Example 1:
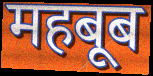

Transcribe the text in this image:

महबूब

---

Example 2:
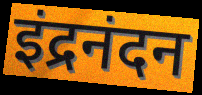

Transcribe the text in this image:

इंद्रनंदन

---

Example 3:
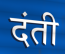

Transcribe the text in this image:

दंती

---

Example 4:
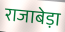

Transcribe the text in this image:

राजाबेड़ा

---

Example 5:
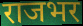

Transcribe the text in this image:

राजभर